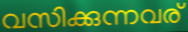
വസിക്കുന്നവര്